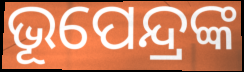
ଭୂପେନ୍ଦ୍ରଙ୍କ